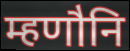
म्हणौनि